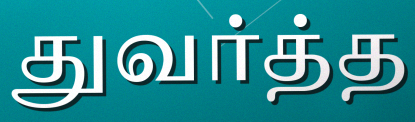
துவர்த்த